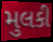
મુલકી